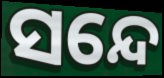
ସନ୍ଦେ